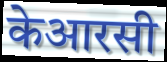
केआरसी